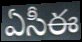
ఏసీఈ